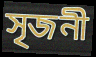
সৃজনী